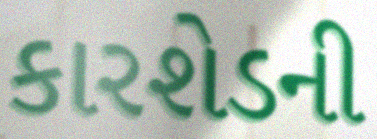
કારશેડની